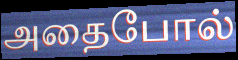
அதைபோல்